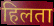
हिलता